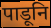
पाडूनि